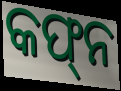
କଫ୍‌ନ